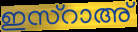
ഇസ്റാഅ്